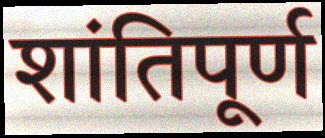
शांतिपूर्ण